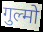
गुल्मो